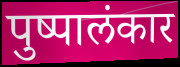
पुष्पालंकार